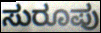
ಸುರೂಪು